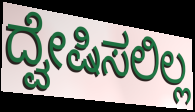
ದ್ವೇಷಿಸಲಿಲ್ಲ